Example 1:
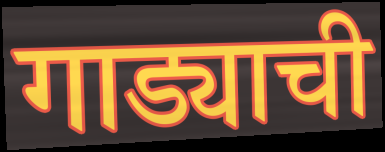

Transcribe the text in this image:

गाड्याची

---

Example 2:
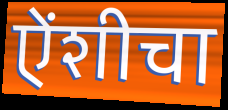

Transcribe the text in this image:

ऐंशीचा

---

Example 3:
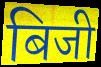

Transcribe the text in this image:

बिजी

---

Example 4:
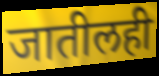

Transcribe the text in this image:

जातीलही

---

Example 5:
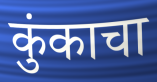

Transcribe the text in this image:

कुंकाचा